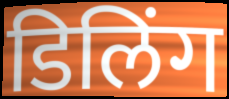
डिलिंग